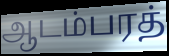
ஆடம்பரத்